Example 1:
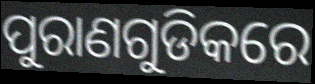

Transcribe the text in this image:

ପୁରାଣଗୁଡିକରେ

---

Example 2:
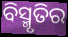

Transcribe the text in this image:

ବିସ୍ମୃତିର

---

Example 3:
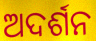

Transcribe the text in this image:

ଅଦର୍ଶନ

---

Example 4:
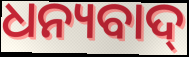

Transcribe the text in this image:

ଧନ୍ୟବାଦ୍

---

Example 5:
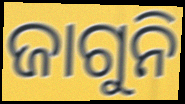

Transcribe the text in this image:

ଜାଗୁନି